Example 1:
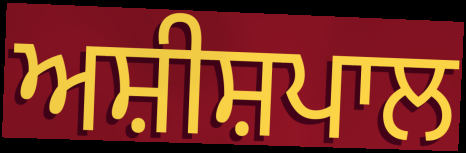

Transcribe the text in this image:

ਅਸ਼ੀਸ਼ਪਾਲ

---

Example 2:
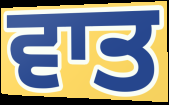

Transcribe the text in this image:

ਵਾਤ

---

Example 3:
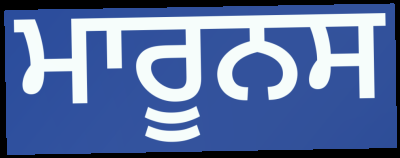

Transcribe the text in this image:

ਮਾਰੂਨਸ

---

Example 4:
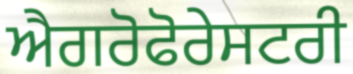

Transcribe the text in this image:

ਐਗਰੋਫੋਰੇਸਟਰੀ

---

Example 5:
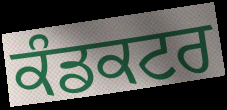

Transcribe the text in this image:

ਕੰਡਕਟਰ